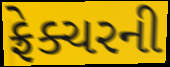
ફ્રેક્ચરની